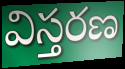
విస్తరణ